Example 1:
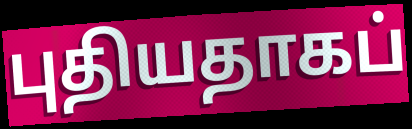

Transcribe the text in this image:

புதியதாகப்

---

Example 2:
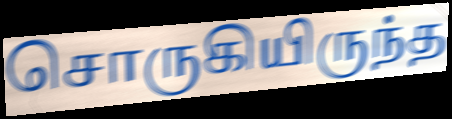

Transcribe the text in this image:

சொருகியிருந்த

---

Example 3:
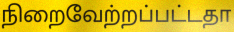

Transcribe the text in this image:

நிறைவேற்றப்பட்டதா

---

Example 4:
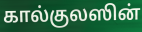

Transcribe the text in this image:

கால்குலஸின்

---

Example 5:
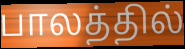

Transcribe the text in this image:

பாலத்தில்